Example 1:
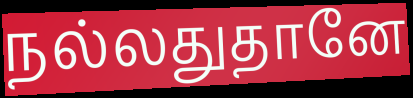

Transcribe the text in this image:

நல்லதுதானே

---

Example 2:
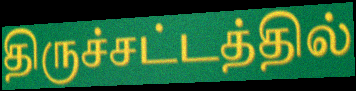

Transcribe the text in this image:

திருச்சட்டத்தில்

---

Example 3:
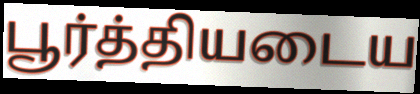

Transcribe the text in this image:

பூர்த்தியடைய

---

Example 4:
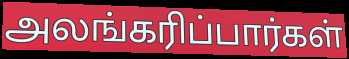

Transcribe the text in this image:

அலங்கரிப்பார்கள்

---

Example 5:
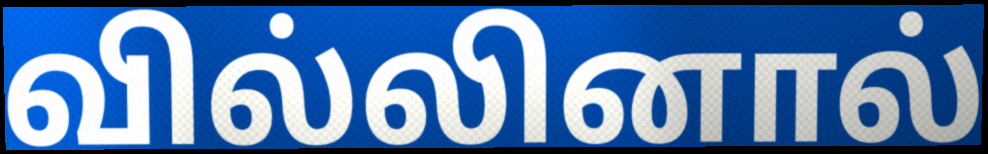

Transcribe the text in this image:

வில்லினால்